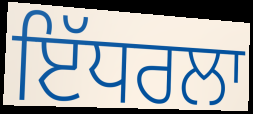
ਇੱਧਰਲਾ